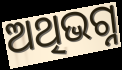
ଅଥିଭଗ୍ନ